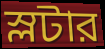
স্লটার